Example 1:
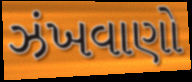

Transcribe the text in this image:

ઝંખવાણો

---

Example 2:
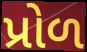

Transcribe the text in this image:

પ્રોળ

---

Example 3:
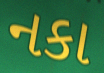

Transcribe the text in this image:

નકા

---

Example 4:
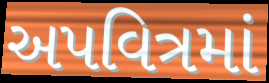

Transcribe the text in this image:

અપવિત્રમાં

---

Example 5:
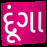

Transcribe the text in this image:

દૂંગા